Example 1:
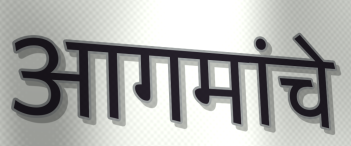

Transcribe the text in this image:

आगमांचे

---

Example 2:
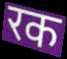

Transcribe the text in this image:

रक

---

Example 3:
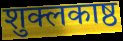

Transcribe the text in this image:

शुक्लकाष्ठ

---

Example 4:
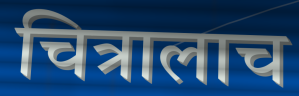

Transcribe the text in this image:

चित्रालाच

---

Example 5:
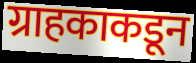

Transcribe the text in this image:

ग्राहकाकडून